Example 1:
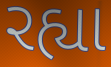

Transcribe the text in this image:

રહ્યા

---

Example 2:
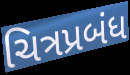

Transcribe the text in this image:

ચિત્રપ્રબંધ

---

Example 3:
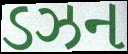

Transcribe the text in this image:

ડઝન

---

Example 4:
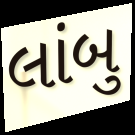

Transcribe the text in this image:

લાંબુ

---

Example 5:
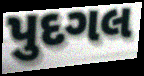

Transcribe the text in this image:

પુદગલ